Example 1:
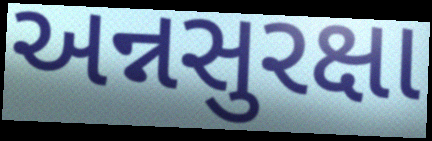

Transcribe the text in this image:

અન્નસુરક્ષા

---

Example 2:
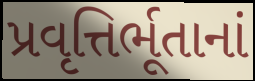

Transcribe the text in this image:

પ્રવૃત્તિર્ભૂતાનાં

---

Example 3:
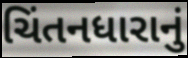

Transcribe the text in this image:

ચિંતનધારાનું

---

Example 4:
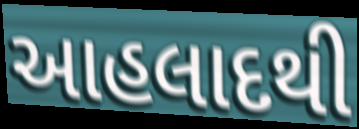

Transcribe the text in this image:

આહલાદથી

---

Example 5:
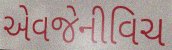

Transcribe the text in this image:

એવજેનીવિચ